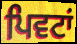
ਪਿਵਟਾਂ